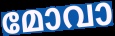
മോവാ